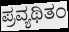
ಪ್ರವ್ಯಥಿತಂ